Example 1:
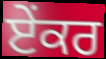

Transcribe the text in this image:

ਏੰਕਰ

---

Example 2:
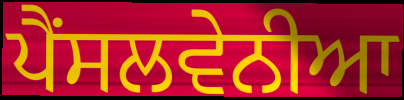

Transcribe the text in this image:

ਪੈਂਸਲਵੇਨੀਆ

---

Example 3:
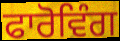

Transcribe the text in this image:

ਫਾਰੋਵਿੰਗ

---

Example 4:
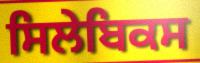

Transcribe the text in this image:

ਸਿਲੇਬਿਕਸ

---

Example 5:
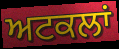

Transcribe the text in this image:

ਅਟਕਲਾਂ